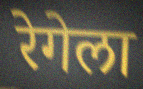
रेगेला